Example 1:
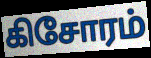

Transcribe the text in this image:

கிசோரம்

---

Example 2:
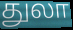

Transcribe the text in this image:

துலா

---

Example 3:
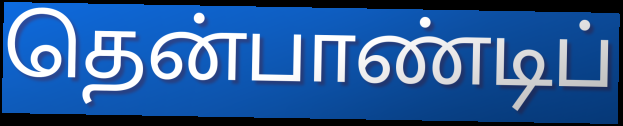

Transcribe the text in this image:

தென்பாண்டிப்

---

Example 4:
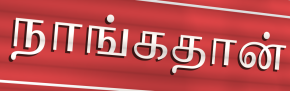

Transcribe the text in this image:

நாங்கதான்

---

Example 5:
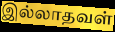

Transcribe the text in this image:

இல்லாதவள்